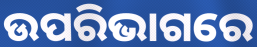
ଉପରିଭାଗରେ